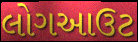
લોગઆઉટ